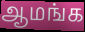
ஆமங்க